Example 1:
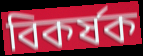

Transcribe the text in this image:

বিকৰ্ষক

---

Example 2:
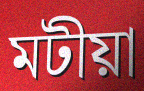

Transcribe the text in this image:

মটীয়া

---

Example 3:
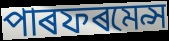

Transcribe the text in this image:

পাৰফৰমেন্স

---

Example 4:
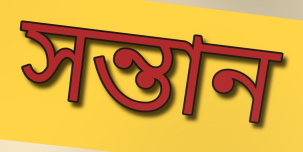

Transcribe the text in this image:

সন্তান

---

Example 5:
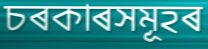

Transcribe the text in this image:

চৰকাৰসমূহৰ